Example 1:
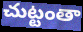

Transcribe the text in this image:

చుట్టంతా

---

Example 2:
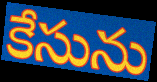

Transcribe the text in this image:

కేసును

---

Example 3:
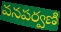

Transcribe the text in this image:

వనపర్వణి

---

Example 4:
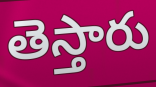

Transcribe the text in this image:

తెస్తారు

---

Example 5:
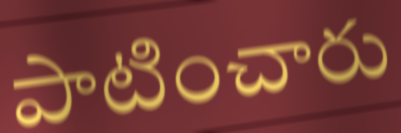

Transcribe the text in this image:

పాటించారు